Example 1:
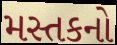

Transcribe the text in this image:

મસ્તકનો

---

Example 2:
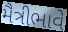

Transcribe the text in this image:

મૈત્રીભાવે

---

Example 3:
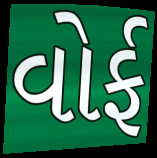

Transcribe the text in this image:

વોર્ફ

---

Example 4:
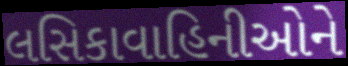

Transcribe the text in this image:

લસિકાવાહિનીઓને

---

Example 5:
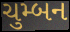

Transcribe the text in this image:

ચુમ્બન